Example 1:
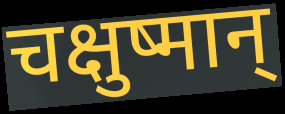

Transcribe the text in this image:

चक्षुष्मान्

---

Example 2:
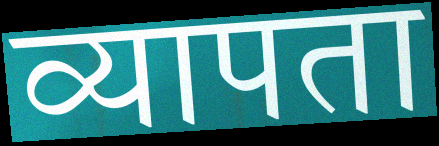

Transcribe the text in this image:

व्यापता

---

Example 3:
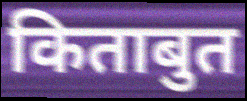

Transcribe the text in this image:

किताबुत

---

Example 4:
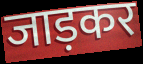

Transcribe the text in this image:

जाड़कर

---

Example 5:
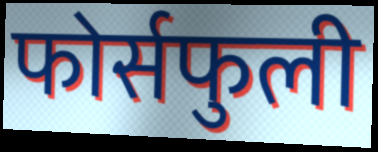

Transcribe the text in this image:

फोर्सफुली